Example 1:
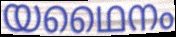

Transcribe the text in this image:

യഥൈനം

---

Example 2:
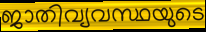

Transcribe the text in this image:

ജാതിവ്യവസ്ഥയുടെ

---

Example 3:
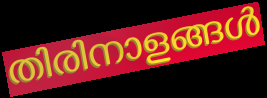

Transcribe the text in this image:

തിരിനാളങ്ങൾ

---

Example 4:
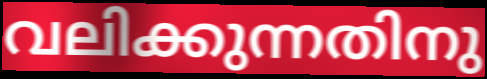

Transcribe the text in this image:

വലിക്കുന്നതിനു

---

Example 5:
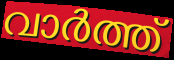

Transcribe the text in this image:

വാർത്ത്